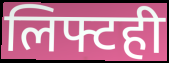
लिफ्टही